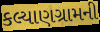
કલ્યાણગ્રામની